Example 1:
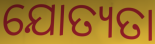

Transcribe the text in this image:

ଯୋତ୍ୟତା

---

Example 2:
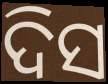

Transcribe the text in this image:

ଦିସ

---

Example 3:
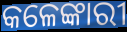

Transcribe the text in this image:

କଳେଙ୍କାରୀ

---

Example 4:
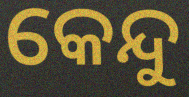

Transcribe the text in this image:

କେନ୍ଦୁ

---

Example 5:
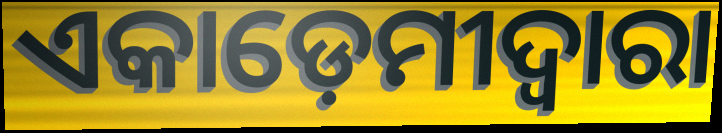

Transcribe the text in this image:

ଏକାଡ଼େମୀଦ୍ଵାରା